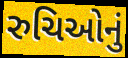
રુચિઓનું